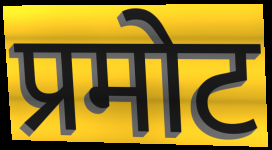
प्रमोट